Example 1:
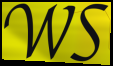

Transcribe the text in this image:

WS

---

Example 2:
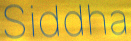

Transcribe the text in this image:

Siddha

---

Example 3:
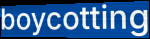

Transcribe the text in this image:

boycotting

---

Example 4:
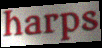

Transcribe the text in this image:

harps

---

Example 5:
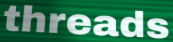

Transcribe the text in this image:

threads